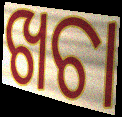
ଖଚା